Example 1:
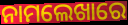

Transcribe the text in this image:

ନାମଲେଖାରେ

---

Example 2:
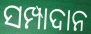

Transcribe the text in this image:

ସମ୍ପାଦାନ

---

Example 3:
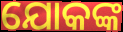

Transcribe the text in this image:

ଯୋକଙ୍କ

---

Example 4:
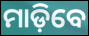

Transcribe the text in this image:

ମାଡ଼ିବେ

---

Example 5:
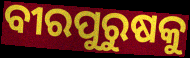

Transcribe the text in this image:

ବୀରପୁରୁଷକୁ